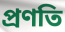
প্রণতি